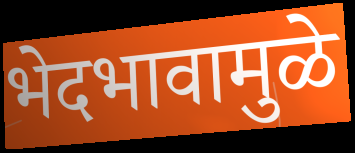
भेदभावामुळे